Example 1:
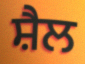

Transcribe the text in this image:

ਸ਼ੈਲ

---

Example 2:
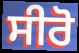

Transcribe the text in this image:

ਸੀਰੋ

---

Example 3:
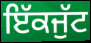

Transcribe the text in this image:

ਇੱਕਜੁੱਟ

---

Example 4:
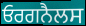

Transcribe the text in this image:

ਓਰਗਨੈਲਸ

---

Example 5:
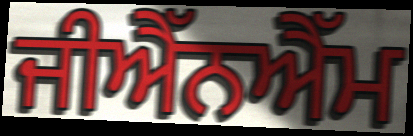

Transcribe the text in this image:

ਜੀਐੱਨਐੱਮ